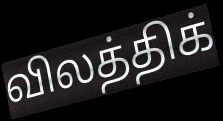
விலத்திக்